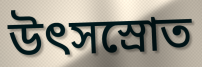
উৎসস্রোত